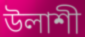
উলাশী